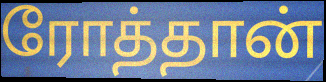
ரோத்தான்